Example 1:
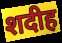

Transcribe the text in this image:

शदीह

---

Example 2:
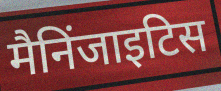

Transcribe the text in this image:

मैनिंजाइटिस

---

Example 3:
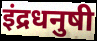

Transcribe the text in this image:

इंद्रधनुषी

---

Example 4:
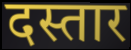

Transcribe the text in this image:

दस्तार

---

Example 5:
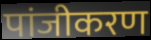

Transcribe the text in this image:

पांजीकरण